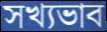
সখ্যভাব